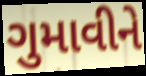
ગુમાવીને